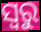
ସ୍ୱରୁ